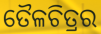
ତୈଳଚିତ୍ରର